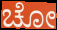
ಚೋ